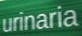
urinaria